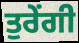
ਤੁਰੇਂਗੀ